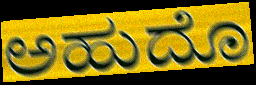
ಅಹುದೊ